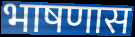
भाषणास